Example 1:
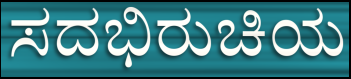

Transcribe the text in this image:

ಸದಭಿರುಚಿಯ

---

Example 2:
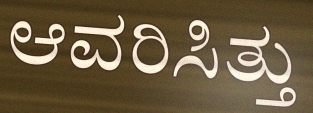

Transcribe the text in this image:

ಆವರಿಸಿತ್ತು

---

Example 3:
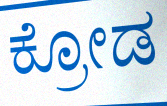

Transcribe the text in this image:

ಕ್ರೋಡ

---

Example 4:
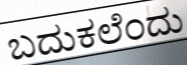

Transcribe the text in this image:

ಬದುಕಲೆಂದು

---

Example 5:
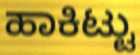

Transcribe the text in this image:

ಹಾಕಿಟ್ಟು